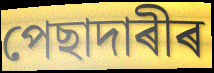
পেছাদাৰীৰ